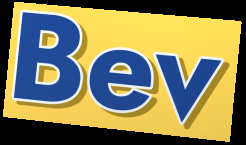
Bev